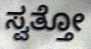
ಸ್ವತ್ತೋ